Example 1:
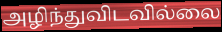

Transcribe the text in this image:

அழிந்துவிடவில்லை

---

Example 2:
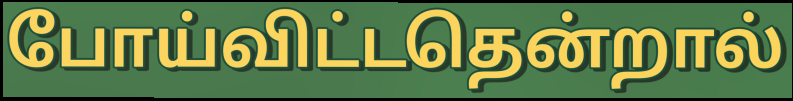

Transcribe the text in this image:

போய்விட்டதென்றால்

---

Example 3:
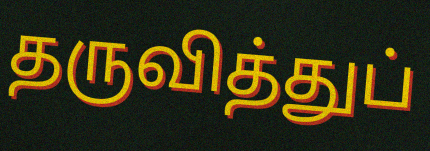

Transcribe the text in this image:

தருவித்துப்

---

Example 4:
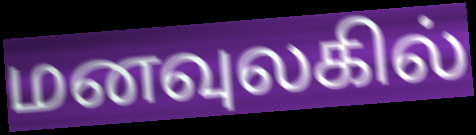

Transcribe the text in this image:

மனவுலகில்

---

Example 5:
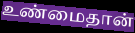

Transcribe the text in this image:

உண்மைதான்